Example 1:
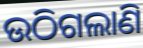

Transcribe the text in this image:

ଉଠିଗଲାଣି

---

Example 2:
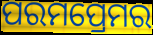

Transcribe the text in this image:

ପରମପ୍ରେମର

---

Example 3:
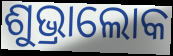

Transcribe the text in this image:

ଶୁଭ୍ରାଲୋକ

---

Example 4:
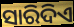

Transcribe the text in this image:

ସାରିଦିଏ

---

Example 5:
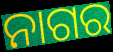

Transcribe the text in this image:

ନାଗର